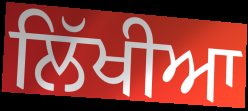
ਲਿੱਖੀਆ